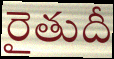
రైతుదీ